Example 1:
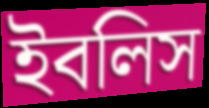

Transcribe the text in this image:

ইবলিস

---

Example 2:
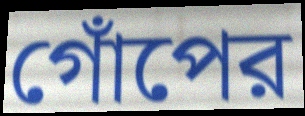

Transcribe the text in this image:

গোঁপের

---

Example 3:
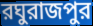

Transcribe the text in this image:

রঘুরাজপুর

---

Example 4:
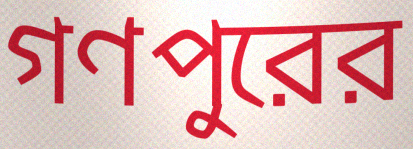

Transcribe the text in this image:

গণপুরের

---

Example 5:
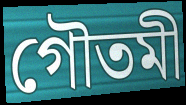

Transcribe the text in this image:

গৌতমী